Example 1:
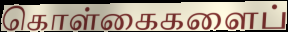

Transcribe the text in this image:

கொள்கைகளைப்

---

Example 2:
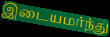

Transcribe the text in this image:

இடையமர்ந்து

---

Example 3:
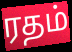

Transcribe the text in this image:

ரதம்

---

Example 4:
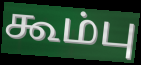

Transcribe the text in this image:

கூம்பு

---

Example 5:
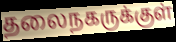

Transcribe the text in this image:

தலைநகருக்குள்